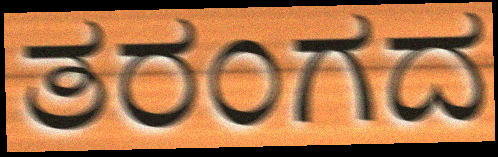
ತರಂಗದ